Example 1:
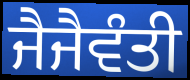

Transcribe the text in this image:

ਜੈਜੈਵੰਤੀ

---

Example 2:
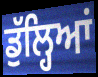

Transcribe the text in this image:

ਡੁੱਲ੍ਹਿਆਂ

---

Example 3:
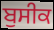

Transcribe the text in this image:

ਬੁਸੀਕ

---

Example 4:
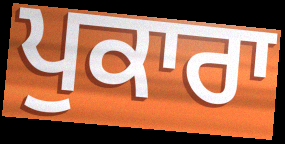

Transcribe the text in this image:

ਪੁਕਾਰਾ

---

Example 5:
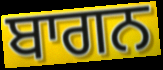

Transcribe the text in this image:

ਬਾਗਨ